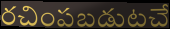
రచింపబడుటచే